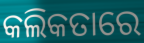
କଲିକତାରେ